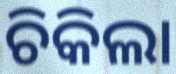
ଚିକିଲା